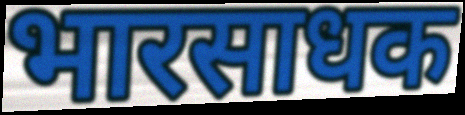
भारसाधक